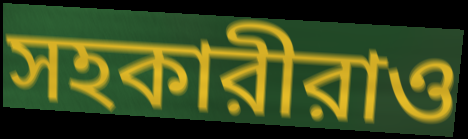
সহকারীরাও